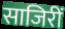
साजिरीं